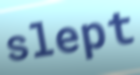
slept